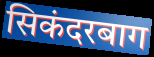
सिकंदरबाग